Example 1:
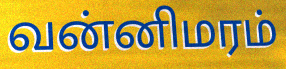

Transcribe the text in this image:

வன்னிமரம்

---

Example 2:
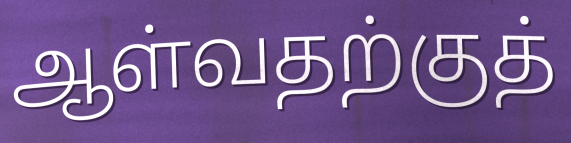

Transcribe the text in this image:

ஆள்வதற்குத்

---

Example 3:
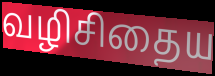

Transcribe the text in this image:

வழிசிதைய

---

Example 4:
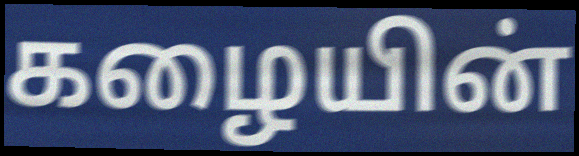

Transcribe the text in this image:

கழையின்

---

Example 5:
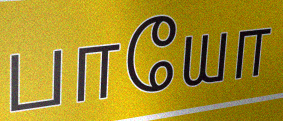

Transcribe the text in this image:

பாயோ